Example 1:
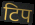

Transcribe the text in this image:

टिप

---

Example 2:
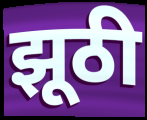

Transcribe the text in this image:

झूठी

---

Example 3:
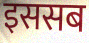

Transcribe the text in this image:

इससब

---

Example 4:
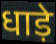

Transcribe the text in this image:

धाड़े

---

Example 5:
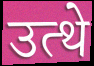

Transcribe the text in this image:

उत्थे